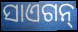
ସାଏଗନ୍